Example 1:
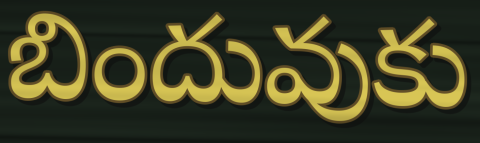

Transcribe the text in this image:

బిందువుకు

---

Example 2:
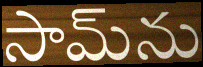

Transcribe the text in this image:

సామ్‌ను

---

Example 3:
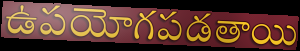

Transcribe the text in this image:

ఉపయోగపడతాయి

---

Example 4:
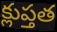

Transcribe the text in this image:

క్లుప్తత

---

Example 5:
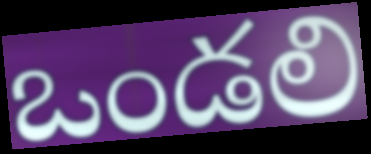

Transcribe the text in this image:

ఒండలి